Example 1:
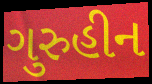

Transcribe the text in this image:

ગુરુહીન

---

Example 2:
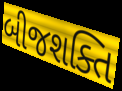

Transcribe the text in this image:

બીજશક્તિ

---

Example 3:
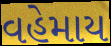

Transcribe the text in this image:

વહેમાય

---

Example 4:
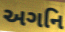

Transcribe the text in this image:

અગનિ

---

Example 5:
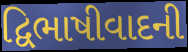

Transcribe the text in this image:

દ્વિભાષીવાદની